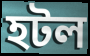
হটল